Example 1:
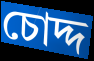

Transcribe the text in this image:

চোদ্দ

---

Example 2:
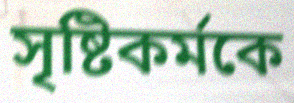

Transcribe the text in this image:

সৃষ্টিকর্মকে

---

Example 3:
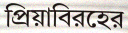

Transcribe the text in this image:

প্রিয়াবিরহের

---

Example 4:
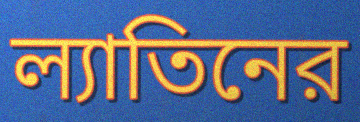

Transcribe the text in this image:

ল্যাতিনের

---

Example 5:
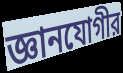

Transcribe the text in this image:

জ্ঞানযোগীর